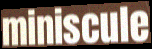
miniscule